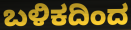
ಬಳಿಕದಿಂದ